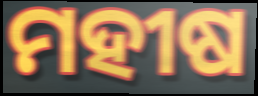
ମହୀଷ